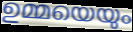
ഉമ്മയെയും